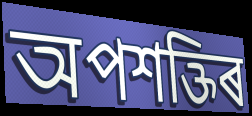
অপশক্তিৰ